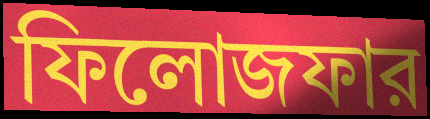
ফিলোজফার